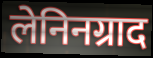
लेनिनग्राद